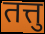
तत्तु